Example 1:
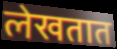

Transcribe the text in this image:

लेखतात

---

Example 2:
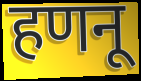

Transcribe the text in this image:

हणनू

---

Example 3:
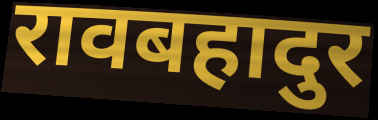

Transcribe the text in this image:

रावबहादुर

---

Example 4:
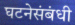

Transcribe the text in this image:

घटनेसंबंधी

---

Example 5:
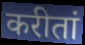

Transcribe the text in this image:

करीतां